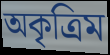
অকৃত্ৰিম